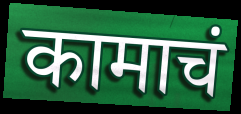
कामाचं